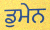
ਡੁਮੇਨ